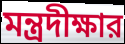
মন্ত্রদীক্ষার